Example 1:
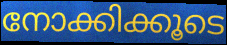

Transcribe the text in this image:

നോക്കിക്കൂടെ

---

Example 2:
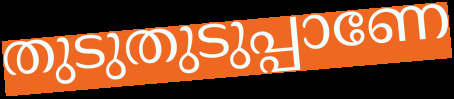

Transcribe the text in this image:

തുടുതുടുപ്പാണേ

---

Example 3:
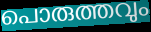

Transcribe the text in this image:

പൊരുത്തവും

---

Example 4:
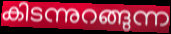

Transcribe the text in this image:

കിടന്നുറങ്ങുന്ന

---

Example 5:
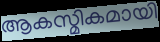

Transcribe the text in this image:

ആകസ്മികമായി